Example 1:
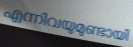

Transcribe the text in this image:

എന്നിവയുമുണ്ടായി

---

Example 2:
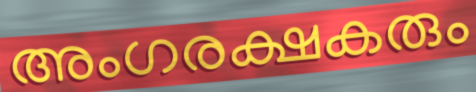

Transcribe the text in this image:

അംഗരക്ഷകരും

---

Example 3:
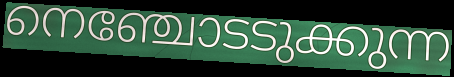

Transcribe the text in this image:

നെഞ്ചോടടുക്കുന്ന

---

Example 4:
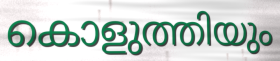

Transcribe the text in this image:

കൊളുത്തിയും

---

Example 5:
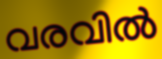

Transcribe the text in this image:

വരവിൽ